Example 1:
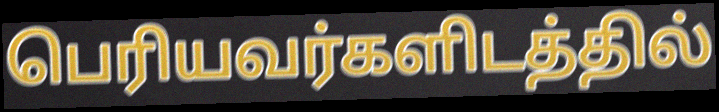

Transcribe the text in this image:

பெரியவர்களிடத்தில்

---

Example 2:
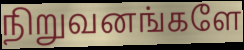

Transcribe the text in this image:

நிறுவனங்களே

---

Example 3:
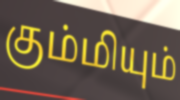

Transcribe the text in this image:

கும்மியும்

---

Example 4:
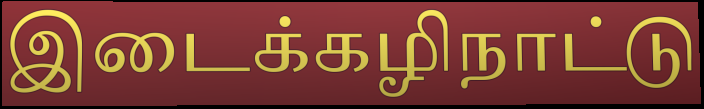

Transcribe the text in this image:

இடைக்கழிநாட்டு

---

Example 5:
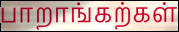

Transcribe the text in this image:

பாறாங்கற்கள்